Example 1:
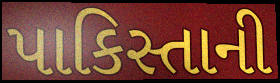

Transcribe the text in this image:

પાકિસ્તાની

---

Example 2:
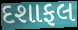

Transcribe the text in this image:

દશાફલ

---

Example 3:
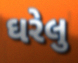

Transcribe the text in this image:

ઘરેલુ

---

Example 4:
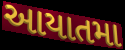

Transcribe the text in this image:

આયાતમા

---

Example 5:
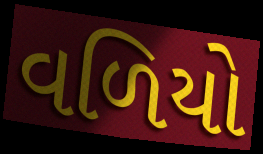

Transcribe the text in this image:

વળિયો